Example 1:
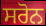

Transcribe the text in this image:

ਸਰੋਨ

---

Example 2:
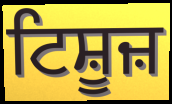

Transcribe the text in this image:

ਟਿਸ਼ੂਜ਼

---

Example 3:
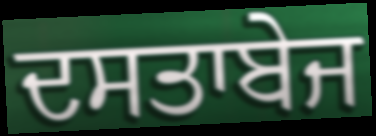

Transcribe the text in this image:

ਦਸਤਾਬੇਜ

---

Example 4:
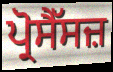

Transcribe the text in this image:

ਪ੍ਰੋਸੈੱਸਜ਼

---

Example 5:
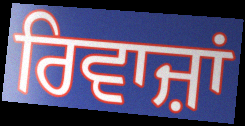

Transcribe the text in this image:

ਰਿਵਾਜ਼ਾਂ